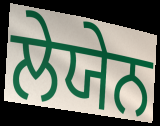
ਲੇਯੇਨ